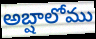
అబ్షాలోము